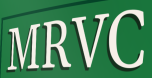
MRVC